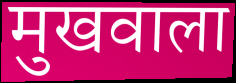
मुखवाला